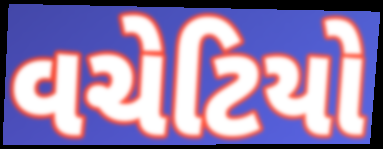
વચેટિયો